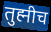
तुह्मीच